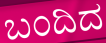
ಬಂದಿದ